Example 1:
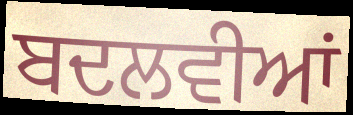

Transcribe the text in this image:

ਬਦਲਵੀਆਂ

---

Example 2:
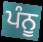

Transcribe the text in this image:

ਪੰਨੂ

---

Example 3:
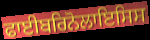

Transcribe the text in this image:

ਫਾਈਬਰਿਨੋਲਾਇਸਿਸ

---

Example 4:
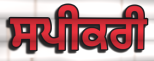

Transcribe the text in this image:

ਸਪੀਕਰੀ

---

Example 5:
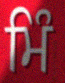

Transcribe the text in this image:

ਮਿੰ